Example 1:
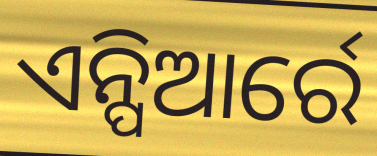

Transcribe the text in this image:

ଏନ୍ପିଆର୍ରେ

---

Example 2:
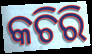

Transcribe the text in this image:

କଚିରି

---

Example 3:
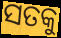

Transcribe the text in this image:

ସତକୁ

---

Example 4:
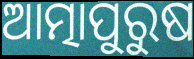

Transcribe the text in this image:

ଆତ୍ମାପୁରୁଷ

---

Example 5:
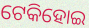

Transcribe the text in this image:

ଟେକିହୋଇ